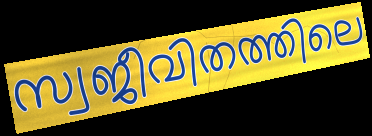
സ്വജീവിതത്തിലെ